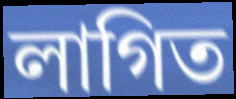
লাগিত